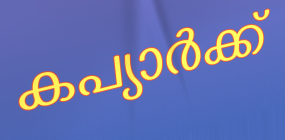
കപ്യാർക്ക്